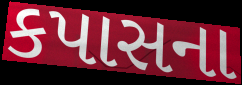
કપાસના